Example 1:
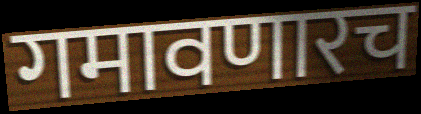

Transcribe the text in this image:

गमावणारच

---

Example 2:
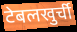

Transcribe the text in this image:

टेबलखुर्ची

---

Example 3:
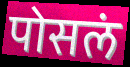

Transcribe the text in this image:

पोसलं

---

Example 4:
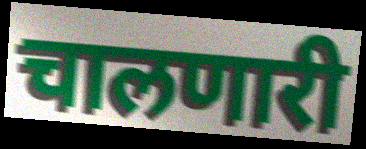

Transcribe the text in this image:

चालणारी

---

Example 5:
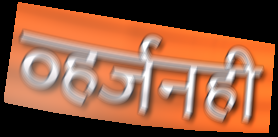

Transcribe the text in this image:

व्हर्जनही